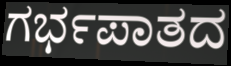
ಗರ್ಭಪಾತದ